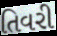
તિવરી